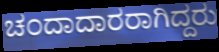
ಚಂದಾದಾರರಾಗಿದ್ದರು